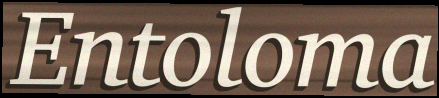
Entoloma